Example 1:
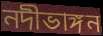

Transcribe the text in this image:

নদীভাঙ্গন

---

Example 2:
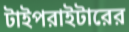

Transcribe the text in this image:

টাইপরাইটারের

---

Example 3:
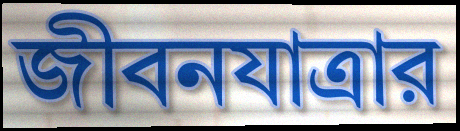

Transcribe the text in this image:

জীবনযাত্রার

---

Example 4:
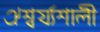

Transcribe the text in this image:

ঐশ্বর্য্যশালী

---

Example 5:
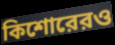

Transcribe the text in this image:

কিশোরেরও